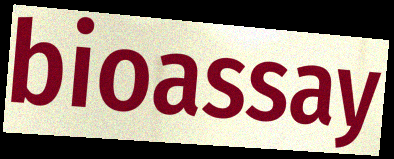
bioassay